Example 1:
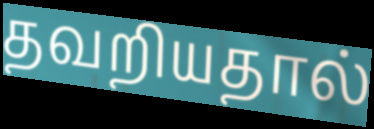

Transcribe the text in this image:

தவறியதால்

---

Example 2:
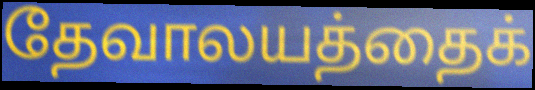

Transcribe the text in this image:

தேவாலயத்தைக்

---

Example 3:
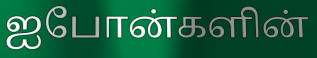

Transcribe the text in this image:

ஐபோன்களின்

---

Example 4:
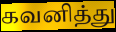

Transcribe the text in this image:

கவனித்து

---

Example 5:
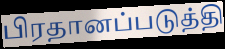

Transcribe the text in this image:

பிரதானப்படுத்தி